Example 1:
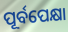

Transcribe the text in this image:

ପୂର୍ବପେକ୍ଷା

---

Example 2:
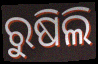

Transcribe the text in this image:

ରୁଷିଲି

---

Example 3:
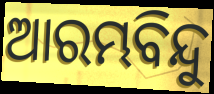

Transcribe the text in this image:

ଆରମ୍ଭବିନ୍ଦୁ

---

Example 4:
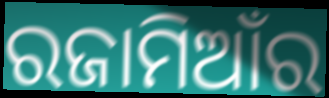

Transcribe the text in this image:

ରଜାମିଆଁର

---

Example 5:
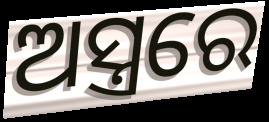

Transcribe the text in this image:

ଅସ୍ତ୍ରରେ